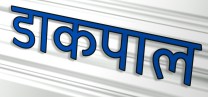
डाकपाल